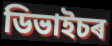
ডিভাইচৰ